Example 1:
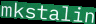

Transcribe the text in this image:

mkstalin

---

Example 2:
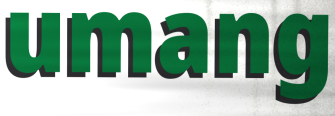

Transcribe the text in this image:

umang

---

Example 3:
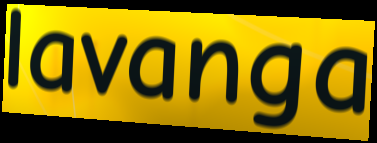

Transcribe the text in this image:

lavanga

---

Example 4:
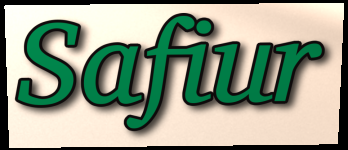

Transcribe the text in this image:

Safiur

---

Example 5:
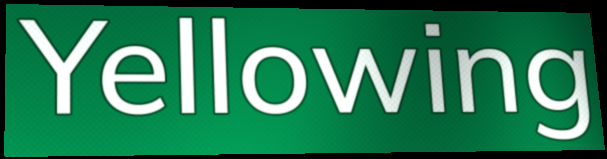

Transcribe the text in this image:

Yellowing